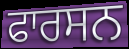
ਫਾਰਸਨ